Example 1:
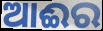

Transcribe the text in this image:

ଆଈର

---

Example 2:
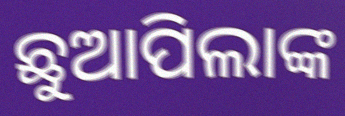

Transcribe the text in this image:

ଛୁଆପିଲାଙ୍କ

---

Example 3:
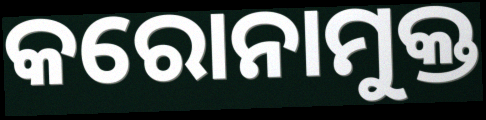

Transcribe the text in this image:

କରୋନାମୁକ୍ତ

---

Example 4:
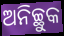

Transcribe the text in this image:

ଅନିଚ୍ଛୁକ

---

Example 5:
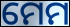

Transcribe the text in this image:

ମେମ